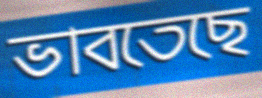
ভাবতেছে